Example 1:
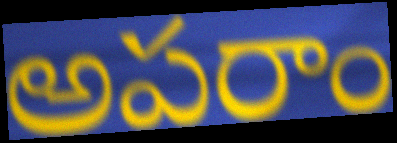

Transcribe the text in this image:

అపరాం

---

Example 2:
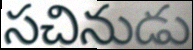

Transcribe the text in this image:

సచినుడు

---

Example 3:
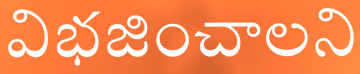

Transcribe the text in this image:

విభజించాలని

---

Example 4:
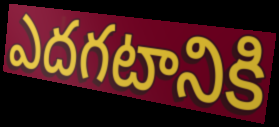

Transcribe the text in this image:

ఎదగటానికి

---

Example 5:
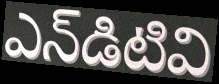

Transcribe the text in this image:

ఎన్‌డిటివి